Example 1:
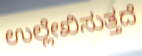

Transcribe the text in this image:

ಉಲ್ಲೇಖಿಸುತ್ತದೆ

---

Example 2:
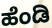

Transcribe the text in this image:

ಹೆಂಡಿ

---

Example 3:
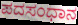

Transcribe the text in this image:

ಪದಸಂಧಾನ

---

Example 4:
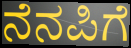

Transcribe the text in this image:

ನೆನಪಿಗೆ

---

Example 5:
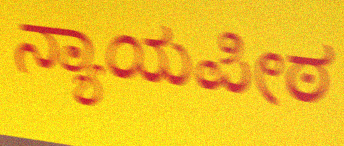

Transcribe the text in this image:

ನ್ಯಾಯಪೀಠ